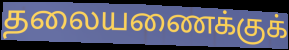
தலையணைக்குக்